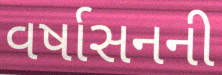
વર્ષાસનની